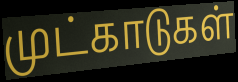
முட்காடுகள்